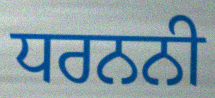
ਧਰਨਨੀ